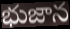
భుజాన